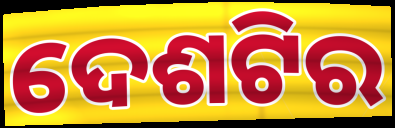
ଦେଶଟିର